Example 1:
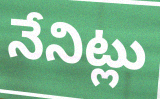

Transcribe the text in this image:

నేనిట్లు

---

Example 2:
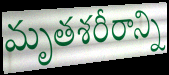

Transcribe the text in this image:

మృతశరీరాన్ని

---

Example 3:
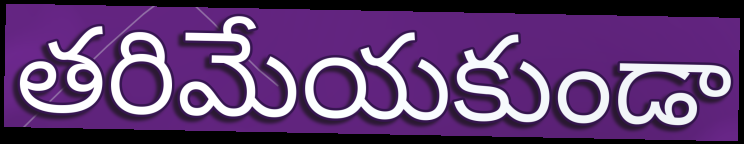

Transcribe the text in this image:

తరిమేయకుండా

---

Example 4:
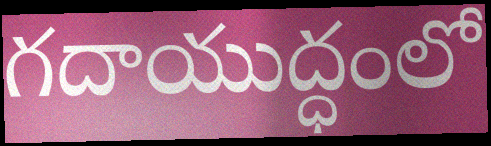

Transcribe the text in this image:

గదాయుద్ధంలో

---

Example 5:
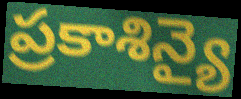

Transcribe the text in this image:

ప్రకాశిన్యై